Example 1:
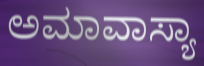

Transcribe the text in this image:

ಅಮಾವಾಸ್ಯಾ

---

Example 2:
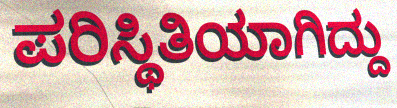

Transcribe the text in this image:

ಪರಿಸ್ಥಿತಿಯಾಗಿದ್ದು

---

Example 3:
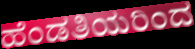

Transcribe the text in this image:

ಹೆಂಡತಿಯರಿಂದ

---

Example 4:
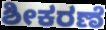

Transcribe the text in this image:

ಶೀಕರಣೆ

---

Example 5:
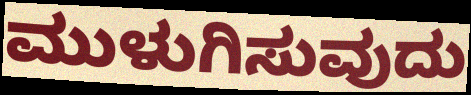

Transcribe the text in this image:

ಮುಳುಗಿಸುವುದು